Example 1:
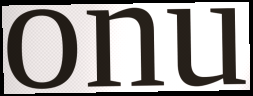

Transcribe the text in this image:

onu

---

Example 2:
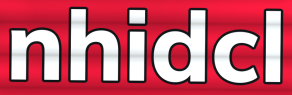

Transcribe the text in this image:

nhidcl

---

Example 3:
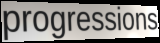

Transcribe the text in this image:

progressions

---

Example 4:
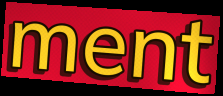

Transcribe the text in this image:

ment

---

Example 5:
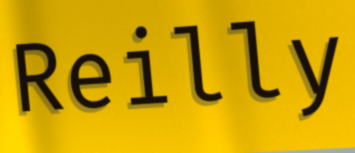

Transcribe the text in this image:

Reilly